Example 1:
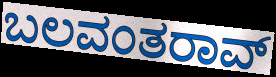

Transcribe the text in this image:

ಬಲವಂತರಾವ್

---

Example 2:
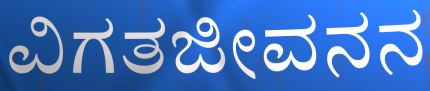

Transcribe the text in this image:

ವಿಗತಜೀವನನ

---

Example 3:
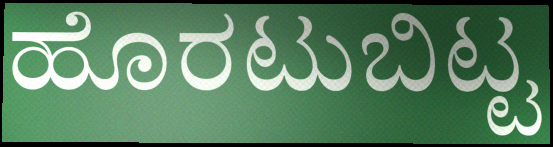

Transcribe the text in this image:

ಹೊರಟುಬಿಟ್ಟ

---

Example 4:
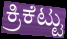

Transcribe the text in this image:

ಕ್ರಿಕೆಟ್ಟು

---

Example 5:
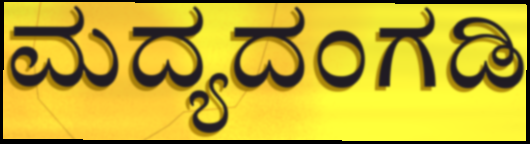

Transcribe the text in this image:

ಮದ್ಯದಂಗಡಿ